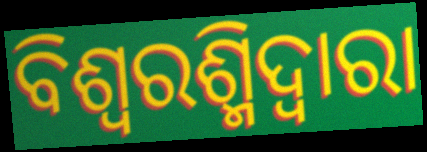
ବିଶ୍ୱରଶ୍ମିଦ୍ୱାରା